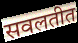
सवलतीत